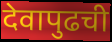
देवापुढची